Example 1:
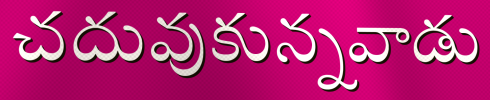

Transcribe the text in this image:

చదువుకున్నవాడు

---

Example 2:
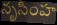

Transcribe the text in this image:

నృసింహ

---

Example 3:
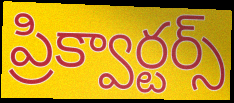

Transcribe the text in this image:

ప్రిక్వార్టర్స్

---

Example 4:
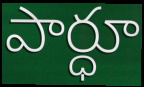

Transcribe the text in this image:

పార్ధూ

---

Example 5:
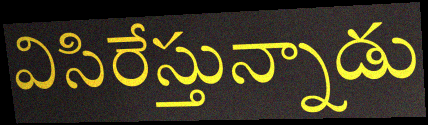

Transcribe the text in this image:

విసిరేస్తున్నాడు